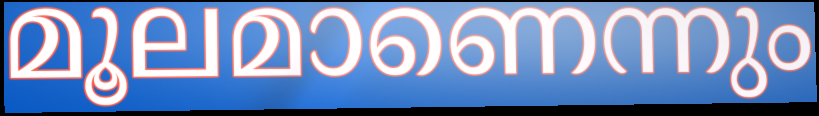
മൂലമാണെന്നും